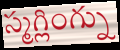
స్మగ్లింగ్ను